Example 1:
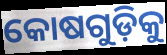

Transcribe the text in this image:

କୋଷଗୁଡ଼ିକୁ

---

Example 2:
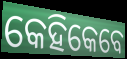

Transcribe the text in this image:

କେହିକେବେ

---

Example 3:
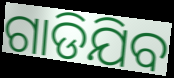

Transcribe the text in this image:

ଗାଡିଯିବ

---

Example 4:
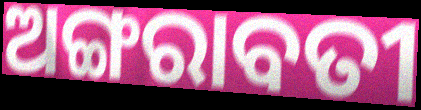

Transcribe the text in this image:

ଅଙ୍ଗରାବତୀ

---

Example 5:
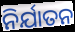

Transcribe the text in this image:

ନିର୍ଯାତନ